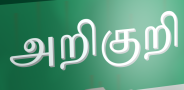
அறிகுறி